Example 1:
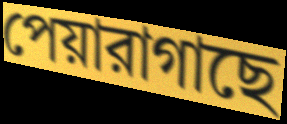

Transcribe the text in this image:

পেয়ারাগাছে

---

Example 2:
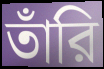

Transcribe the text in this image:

তাঁরি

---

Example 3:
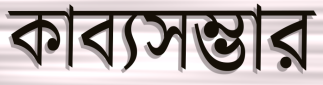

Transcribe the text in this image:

কাব্যসম্ভার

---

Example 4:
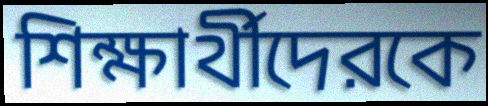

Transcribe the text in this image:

শিক্ষার্থীদেরকে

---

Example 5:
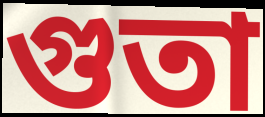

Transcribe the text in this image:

গুতা